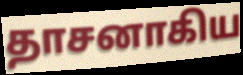
தாசனாகிய